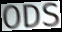
ODS